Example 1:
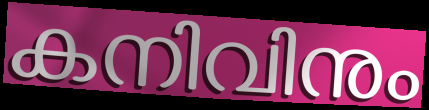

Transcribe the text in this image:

കനിവിനും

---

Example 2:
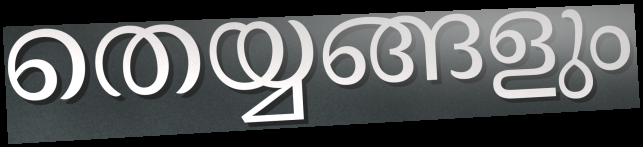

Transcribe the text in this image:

തെയ്യങ്ങളും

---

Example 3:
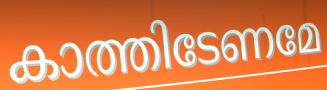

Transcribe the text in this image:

കാത്തിടേണമേ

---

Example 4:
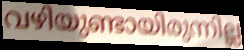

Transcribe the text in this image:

വഴിയുണ്ടായിരുന്നില്ല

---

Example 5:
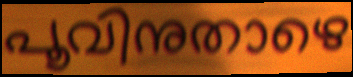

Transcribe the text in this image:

പൂവിനുതാഴെ